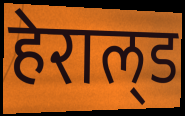
हेराल्ड